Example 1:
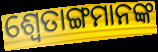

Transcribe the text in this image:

ଶ୍ଵେତାଙ୍ଗମାନଙ୍କ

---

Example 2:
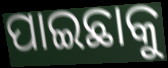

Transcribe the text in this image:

ପାଇଛାକୁ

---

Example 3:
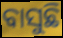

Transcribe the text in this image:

ବାସୁଛି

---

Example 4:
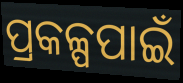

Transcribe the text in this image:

ପ୍ରକଳ୍ପପାଇଁ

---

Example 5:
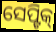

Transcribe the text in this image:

ସେପ୍ଟିକ୍